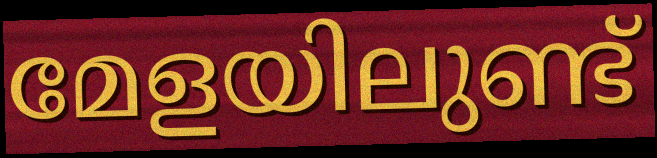
മേളയിലുണ്ട്